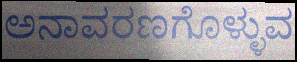
ಅನಾವರಣಗೊಳ್ಳುವ